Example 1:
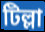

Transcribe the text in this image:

টিল্লা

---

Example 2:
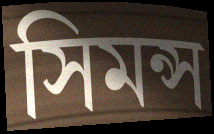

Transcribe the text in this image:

সিমন্স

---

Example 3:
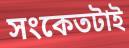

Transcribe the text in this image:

সংকেতটাই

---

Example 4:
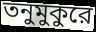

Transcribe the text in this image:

তনুমুকুরে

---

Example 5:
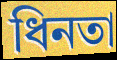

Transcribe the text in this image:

ধিনতা